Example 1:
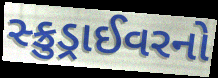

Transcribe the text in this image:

સ્ક્રુડ્રાઈવરનો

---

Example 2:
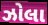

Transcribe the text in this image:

ઝોલા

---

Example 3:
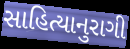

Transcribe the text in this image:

સાહિત્યાનુરાગી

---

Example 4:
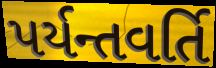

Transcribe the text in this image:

પર્યન્તવર્તિ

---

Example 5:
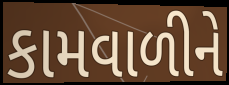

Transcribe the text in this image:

કામવાળીને